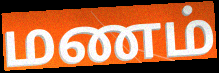
மணம்